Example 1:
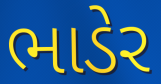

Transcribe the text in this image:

ભાડેર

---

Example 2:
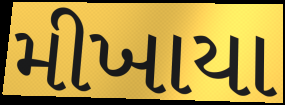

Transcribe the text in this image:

મીખાયા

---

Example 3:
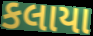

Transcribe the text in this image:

કલાયા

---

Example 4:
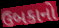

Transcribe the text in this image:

ઉબકાનો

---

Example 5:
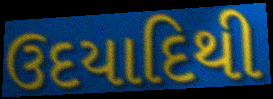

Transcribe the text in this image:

ઉદયાદિથી